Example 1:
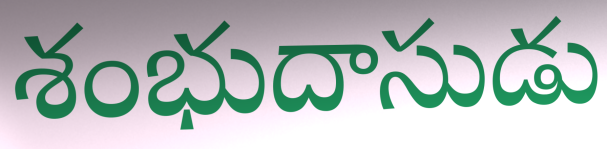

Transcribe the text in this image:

శంభుదాసుడు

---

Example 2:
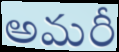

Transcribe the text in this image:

అమరీ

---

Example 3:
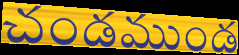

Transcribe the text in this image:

చండముండ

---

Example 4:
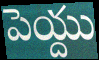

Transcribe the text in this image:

పెయ్దు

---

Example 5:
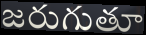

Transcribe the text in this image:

జరుగుతూ